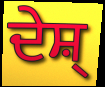
ਦੇਸ਼੍